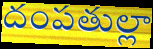
దంపతుల్లా